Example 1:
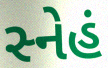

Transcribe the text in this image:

સ્નેહં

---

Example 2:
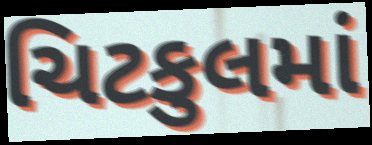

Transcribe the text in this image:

ચિટકુલમાં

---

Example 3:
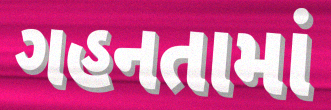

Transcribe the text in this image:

ગહનતામાં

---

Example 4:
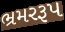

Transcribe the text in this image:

ભ્રમરરૂપ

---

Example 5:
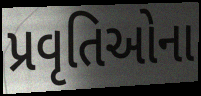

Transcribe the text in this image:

પ્રવૃતિઓના